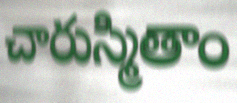
చారుస్మితాం